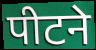
पीटने